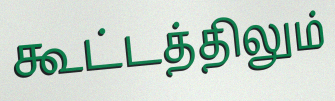
கூட்டத்திலும்